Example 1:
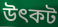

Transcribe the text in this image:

উৎকট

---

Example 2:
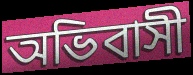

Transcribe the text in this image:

অভিবাসী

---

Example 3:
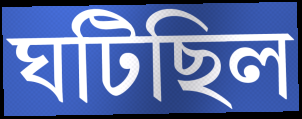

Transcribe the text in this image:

ঘটিছিল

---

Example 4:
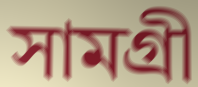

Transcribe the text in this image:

সামগ্ৰী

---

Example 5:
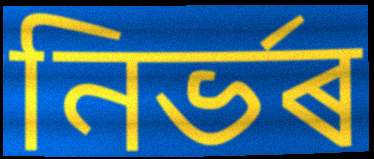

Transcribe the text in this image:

নিৰ্ভৰ